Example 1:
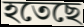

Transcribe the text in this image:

হতেছে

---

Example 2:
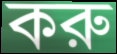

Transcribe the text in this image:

করু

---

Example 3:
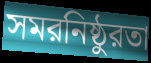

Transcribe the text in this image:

সমরনিষ্ঠুরতা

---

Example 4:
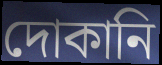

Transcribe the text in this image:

দোকানি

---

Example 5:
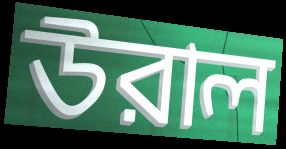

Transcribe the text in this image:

উরাল